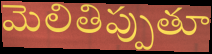
మెలితిప్పుతూ